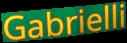
Gabrielli